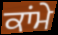
ਕਾਂਮੇ